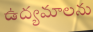
ఉద్యమాలను